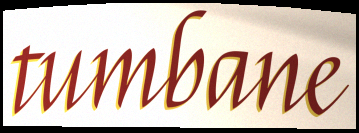
tumbane